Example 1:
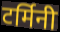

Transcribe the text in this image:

टर्मिनी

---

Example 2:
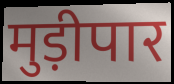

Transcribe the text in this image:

मुड़ीपार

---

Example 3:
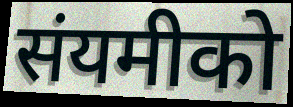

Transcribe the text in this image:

संयमीको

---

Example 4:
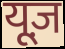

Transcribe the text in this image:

यूज़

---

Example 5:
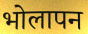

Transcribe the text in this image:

भोलापन